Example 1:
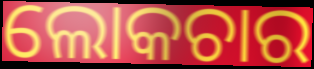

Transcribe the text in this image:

ଲୋକଚାର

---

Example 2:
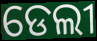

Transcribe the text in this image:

ଡେଲୀ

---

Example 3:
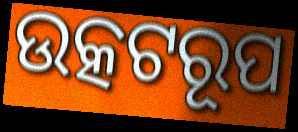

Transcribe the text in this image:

ଉତ୍କଟରୂପ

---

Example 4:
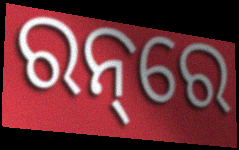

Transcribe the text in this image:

ରନ୍‌ରେ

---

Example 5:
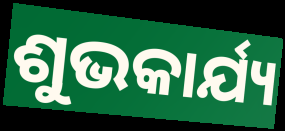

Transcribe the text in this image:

ଶୁଭକାର୍ଯ୍ୟ